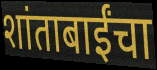
शांताबाईंचा